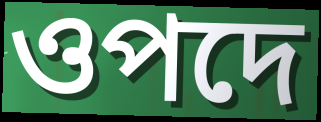
ওপদে